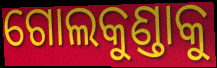
ଗୋଲକୁଣ୍ଡାକୁ